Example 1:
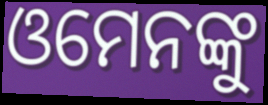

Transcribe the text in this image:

ଓମେନଙ୍କୁ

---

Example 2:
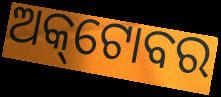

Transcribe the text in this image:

ଅକ୍‌ଟୋବର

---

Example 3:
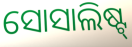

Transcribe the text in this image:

ସୋସାଲିଷ୍ଟ୍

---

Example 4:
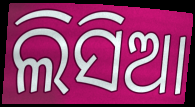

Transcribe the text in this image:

ଲିସିଆ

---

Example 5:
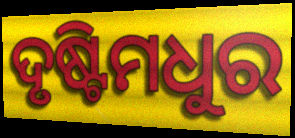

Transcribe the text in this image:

ଦୃଷ୍ଟିମଧୁର